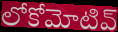
లోకోమోటివ్